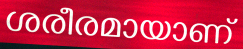
ശരീരമായാണ്